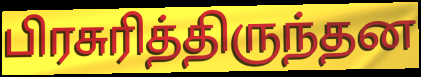
பிரசுரித்திருந்தன